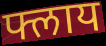
फ्लाय